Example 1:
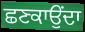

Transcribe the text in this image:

ਛਣਕਾਉਂਦਾ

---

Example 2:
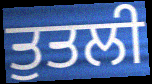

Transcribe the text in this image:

ਤੁਤਲੀ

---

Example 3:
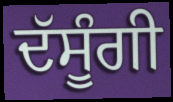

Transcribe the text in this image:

ਦੱਸੂੰਗੀ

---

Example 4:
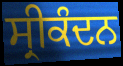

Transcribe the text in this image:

ਸ੍ਰੀਕੰਦਨ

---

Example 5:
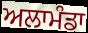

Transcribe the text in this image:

ਅਲਾਮੰਡਾ